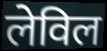
लेविल